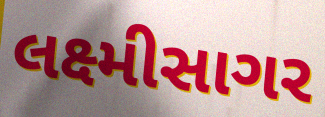
લક્ષ્મીસાગર